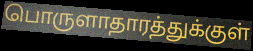
பொருளாதாரத்துக்குள்